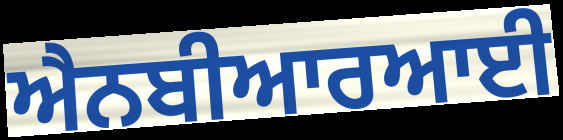
ਐਨਬੀਆਰਆਈ